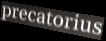
precatorius